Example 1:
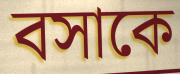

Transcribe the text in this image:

বসাকে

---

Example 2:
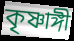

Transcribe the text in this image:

কৃষ্ণাঙ্গী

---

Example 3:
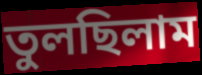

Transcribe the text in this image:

তুলছিলাম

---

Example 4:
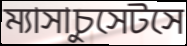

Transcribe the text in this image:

ম্যাসাচুসেটসে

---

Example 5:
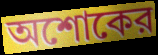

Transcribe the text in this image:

অশোকের